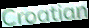
Croatian